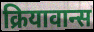
क्रियावान्स